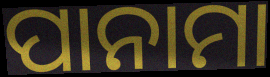
ପାନାମା